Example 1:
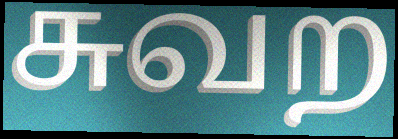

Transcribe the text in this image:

சுவற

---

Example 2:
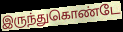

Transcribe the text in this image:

இருந்துகொண்டே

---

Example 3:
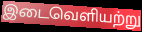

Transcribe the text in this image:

இடைவெளியற்று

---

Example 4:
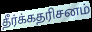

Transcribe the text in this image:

தீர்க்கதரிசனம்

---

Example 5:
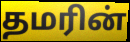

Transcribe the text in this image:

தமரின்